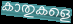
കാതുകളെ